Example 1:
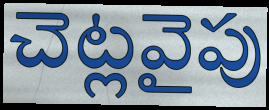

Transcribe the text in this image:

చెట్లవైపు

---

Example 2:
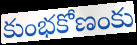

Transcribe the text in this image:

కుంభకోణంకు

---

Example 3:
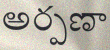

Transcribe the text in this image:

అర్పణా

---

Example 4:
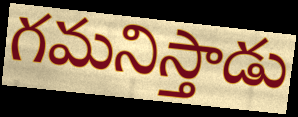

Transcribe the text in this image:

గమనిస్తాడు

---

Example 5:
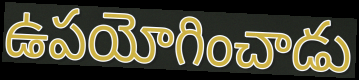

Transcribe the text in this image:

ఉపయోగించాడు